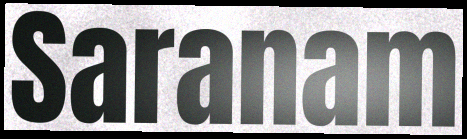
Saranam